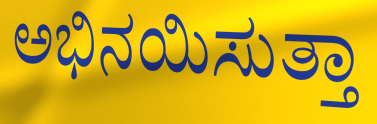
ಅಭಿನಯಿಸುತ್ತಾ